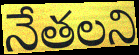
నేతలని